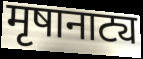
मृषानाट्य